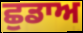
ਛੁਡਾਅ